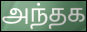
அந்தக